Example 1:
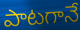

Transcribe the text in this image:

పాటగానే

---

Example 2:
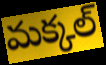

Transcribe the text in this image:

మక్కల్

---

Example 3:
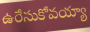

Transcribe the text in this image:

ఉరేసుకోవయ్యా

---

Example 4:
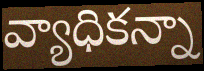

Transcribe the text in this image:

వ్యాధికన్నా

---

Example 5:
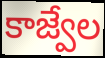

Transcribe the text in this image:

కాజ్వేల